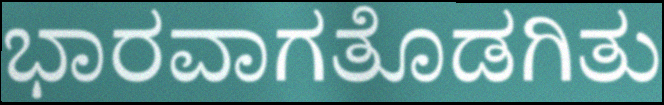
ಭಾರವಾಗತೊಡಗಿತು